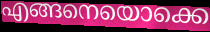
എങ്ങനെയൊക്കെ